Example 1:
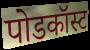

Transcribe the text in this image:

पोडकॉस्ट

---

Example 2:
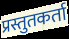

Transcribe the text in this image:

प्रस्तुतकर्ता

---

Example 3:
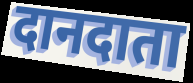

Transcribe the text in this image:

दानदाता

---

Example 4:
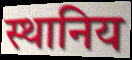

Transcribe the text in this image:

स्थानिय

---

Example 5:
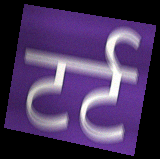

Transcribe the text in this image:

टर्ट